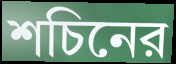
শচিনের